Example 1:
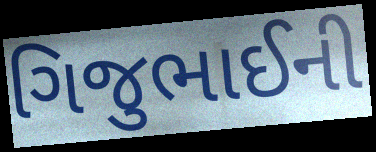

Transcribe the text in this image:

ગિજુભાઈની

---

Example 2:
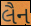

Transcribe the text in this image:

લૈન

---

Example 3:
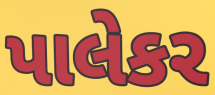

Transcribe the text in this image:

પાલેકર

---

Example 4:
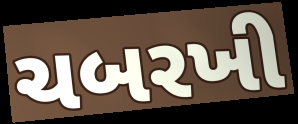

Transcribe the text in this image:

ચબરખી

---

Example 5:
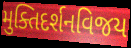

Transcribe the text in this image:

મુક્તિદર્શનવિજય